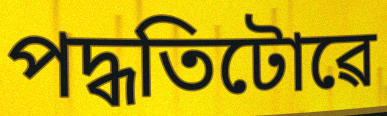
পদ্ধতিটোৱে